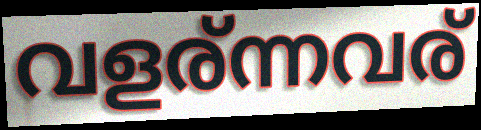
വളര്ന്നവര്